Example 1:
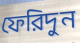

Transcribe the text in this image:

ফেরিদুন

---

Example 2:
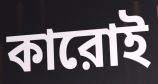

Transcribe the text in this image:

কারোই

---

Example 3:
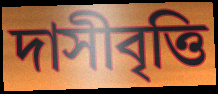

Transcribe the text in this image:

দাসীবৃত্তি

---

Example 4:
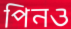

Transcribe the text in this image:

পিনও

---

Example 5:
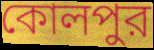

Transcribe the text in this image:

কোলপুর